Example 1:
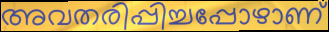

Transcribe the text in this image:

അവതരിപ്പിച്ചപ്പോഴാണ്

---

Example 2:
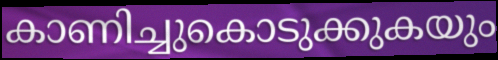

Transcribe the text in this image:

കാണിച്ചുകൊടുക്കുകയും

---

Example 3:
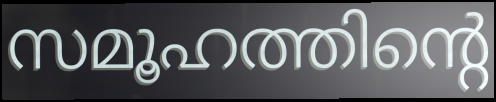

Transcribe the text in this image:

സമൂഹത്തിന്റെ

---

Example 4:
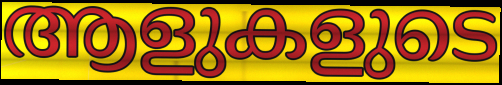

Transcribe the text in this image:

ആളുകളുടെ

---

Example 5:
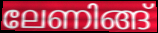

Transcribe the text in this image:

ലേണിങ്ങ്